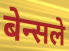
बेन्सले